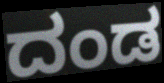
ದಂಡ